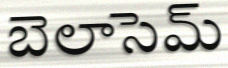
బెలాసెమ్